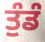
ਤੁੰਡੰ